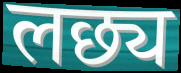
लछ्य